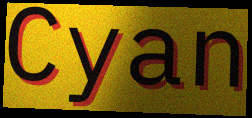
Cyan